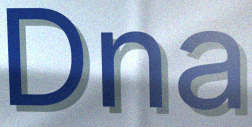
Dna